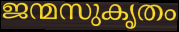
ജന്മസുകൃതം